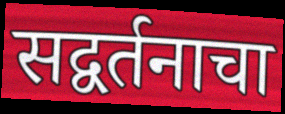
सद्वर्तनाचा